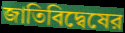
জাতিবিদ্বেষের